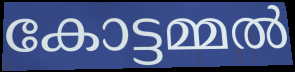
കോട്ടമ്മൽ